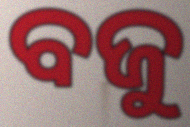
ବଜୁ